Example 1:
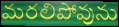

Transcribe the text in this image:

మరలిపోవును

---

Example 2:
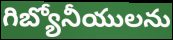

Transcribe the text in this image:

గిబ్యోనీయులను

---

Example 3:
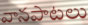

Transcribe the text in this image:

వానపాటలు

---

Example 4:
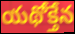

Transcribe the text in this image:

యథోక్తేన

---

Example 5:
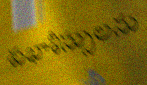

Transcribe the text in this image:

శుభాశీస్సులను